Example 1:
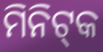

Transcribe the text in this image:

ମିନିଟ୍‌କ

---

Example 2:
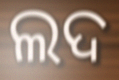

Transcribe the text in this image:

ଲଦ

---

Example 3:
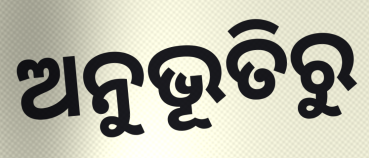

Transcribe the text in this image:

ଅନୁଭୂତିରୁ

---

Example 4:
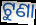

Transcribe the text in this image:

ଟୁଣା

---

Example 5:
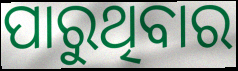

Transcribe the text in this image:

ପାରୁଥିବାର